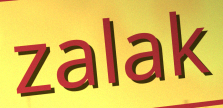
zalak